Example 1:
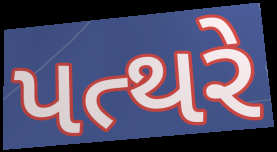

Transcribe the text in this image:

પત્થરે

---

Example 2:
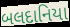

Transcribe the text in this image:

બલદાનિયા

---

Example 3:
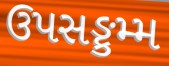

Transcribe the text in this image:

ઉપસઙ્કમ્મ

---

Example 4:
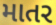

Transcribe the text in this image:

માતર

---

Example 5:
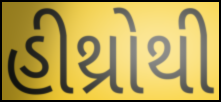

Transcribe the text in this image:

હીથ્રોથી